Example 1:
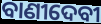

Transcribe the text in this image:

ବାଣୀଦେବୀ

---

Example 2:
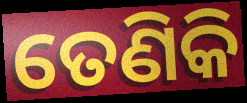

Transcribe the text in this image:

ତେଣିକି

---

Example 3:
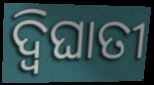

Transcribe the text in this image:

ଦ୍ବିଘାତୀ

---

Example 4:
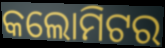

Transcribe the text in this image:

କଲୋମିଟର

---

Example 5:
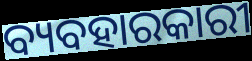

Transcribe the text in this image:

ବ୍ୟବହାରକାରୀ